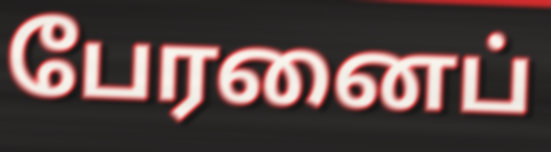
பேரனைப்